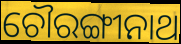
ଚୌରଙ୍ଗୀନାଥ